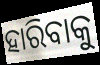
ହାରିବାକୁ